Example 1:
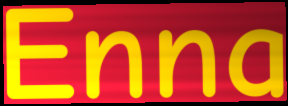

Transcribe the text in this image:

Enna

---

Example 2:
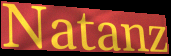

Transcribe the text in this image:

Natanz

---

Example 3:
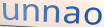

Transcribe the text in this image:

unnao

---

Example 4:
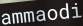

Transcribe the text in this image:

ammaodi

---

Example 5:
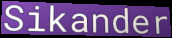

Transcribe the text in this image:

Sikander